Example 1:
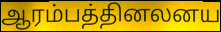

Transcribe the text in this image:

ஆரம்பத்தினலனய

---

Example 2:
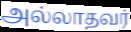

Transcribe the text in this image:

அல்லாதவர்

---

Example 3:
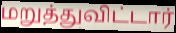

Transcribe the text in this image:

மறுத்துவிட்டார்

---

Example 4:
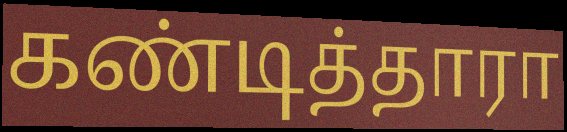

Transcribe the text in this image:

கண்டித்தாரா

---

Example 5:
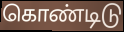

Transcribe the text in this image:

கொண்டிடு